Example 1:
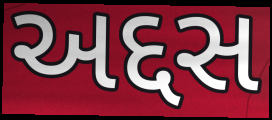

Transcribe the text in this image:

અદ્દસ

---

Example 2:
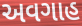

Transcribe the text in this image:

અવગાહ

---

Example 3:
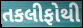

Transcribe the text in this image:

તકલીફોથી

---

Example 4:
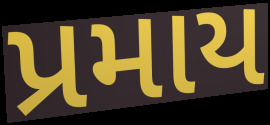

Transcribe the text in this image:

પ્રમાય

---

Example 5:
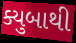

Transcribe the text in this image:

ક્યુબાથી